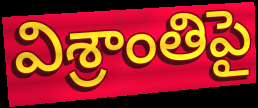
విశ్రాంతిపై